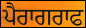
ਪੈਰਾਗਰਾਫ